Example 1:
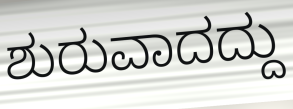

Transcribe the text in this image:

ಶುರುವಾದದ್ದು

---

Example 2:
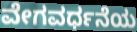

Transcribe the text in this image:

ವೇಗವರ್ಧನೆಯ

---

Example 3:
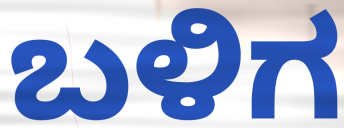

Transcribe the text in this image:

ಬಳಿಗ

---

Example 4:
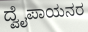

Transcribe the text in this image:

ದ್ವೈಪಾಯನರ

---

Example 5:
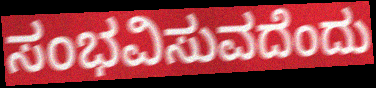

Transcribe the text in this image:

ಸಂಭವಿಸುವದೆಂದು